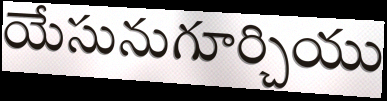
యేసునుగూర్చియు